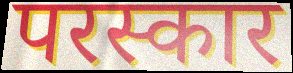
परस्कार